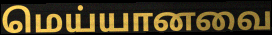
மெய்யானவை